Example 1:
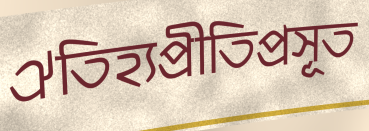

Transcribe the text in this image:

ঐতিহ্যপ্রীতিপ্রসূত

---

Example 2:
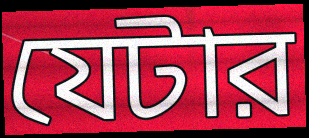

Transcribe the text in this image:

যেটার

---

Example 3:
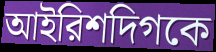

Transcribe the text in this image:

আইরিশদিগকে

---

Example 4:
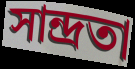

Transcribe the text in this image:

সান্দ্রতা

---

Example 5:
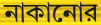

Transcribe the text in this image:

নাকানোর